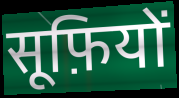
सूफ़ियों